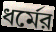
ধর্মের